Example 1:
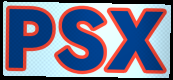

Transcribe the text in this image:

PSX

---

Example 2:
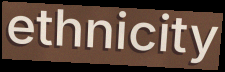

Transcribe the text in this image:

ethnicity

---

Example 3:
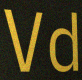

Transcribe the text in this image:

Vd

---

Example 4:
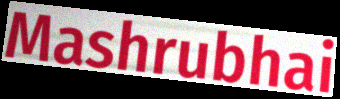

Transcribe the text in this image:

Mashrubhai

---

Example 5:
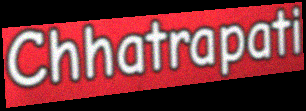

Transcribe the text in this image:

Chhatrapati